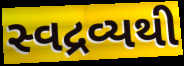
સ્વદ્રવ્યથી